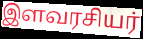
இளவரசியர்